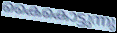
കൈകൊട്ടുന്നു